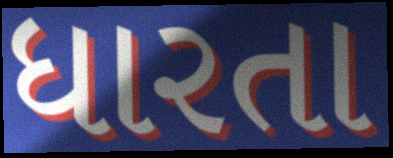
ધારતા